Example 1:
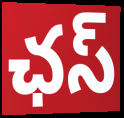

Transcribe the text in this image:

ఛస్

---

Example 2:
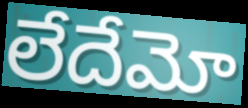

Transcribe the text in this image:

లేదేమో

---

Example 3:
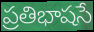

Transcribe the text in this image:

ప్రతిభాషసే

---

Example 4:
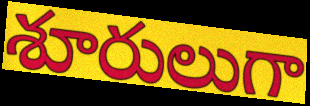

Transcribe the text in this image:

శూరులుగా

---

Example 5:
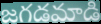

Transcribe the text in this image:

జగడమాడి